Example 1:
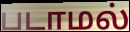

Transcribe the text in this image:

படாமல்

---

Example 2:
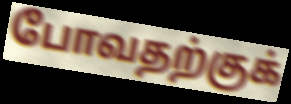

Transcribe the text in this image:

போவதற்குக்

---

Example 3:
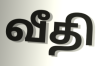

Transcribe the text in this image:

வீதி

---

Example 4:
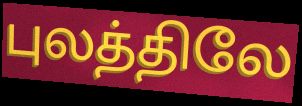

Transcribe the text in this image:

புலத்திலே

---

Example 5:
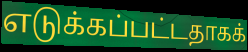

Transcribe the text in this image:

எடுக்கப்பட்டதாகக்